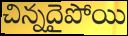
చిన్నదైపోయి